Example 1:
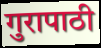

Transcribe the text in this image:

गुरापाठी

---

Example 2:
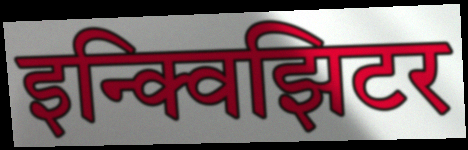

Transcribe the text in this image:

इन्क्विझिटर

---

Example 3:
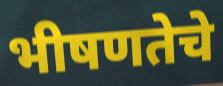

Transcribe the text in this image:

भीषणतेचे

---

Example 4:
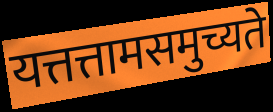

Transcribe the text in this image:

यत्तत्तामसमुच्यते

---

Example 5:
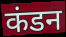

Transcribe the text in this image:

कंडन